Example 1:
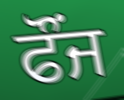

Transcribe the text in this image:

ਫੌਂਜ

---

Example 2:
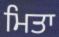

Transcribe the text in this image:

ਮਿਤਾ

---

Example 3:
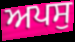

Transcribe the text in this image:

ਅਪਸੁ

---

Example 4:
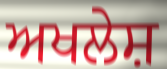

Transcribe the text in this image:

ਅਖਲੇਸ਼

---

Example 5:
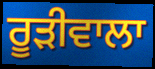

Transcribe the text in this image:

ਰੂਡ਼ੀਵਾਲਾ